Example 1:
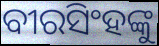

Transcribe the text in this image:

ବୀରସିଂହଙ୍କୁ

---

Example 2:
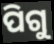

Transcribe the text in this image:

ପିଗୁ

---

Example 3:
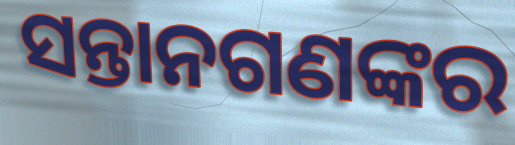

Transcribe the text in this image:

ସନ୍ତାନଗଣଙ୍କର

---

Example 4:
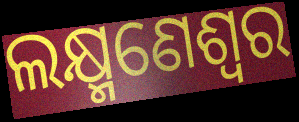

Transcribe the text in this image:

ଲକ୍ଷ୍ମଣେଶ୍ୱର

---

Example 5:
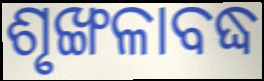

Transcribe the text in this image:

ଶୃଙ୍ଖଳାବଦ୍ଧ